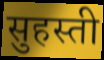
सुहस्ती